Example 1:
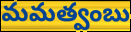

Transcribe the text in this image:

మమత్వంబు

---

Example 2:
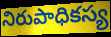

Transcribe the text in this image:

నిరుపాధికస్య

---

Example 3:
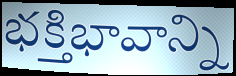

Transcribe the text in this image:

భక్తిభావాన్ని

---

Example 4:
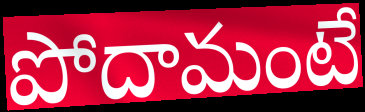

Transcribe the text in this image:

పోదామంటే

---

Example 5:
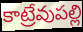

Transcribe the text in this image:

కాట్రేవుపల్లి